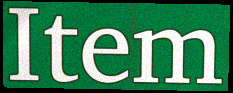
Item